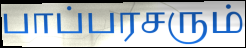
பாப்பரசரும்